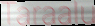
Taraalu